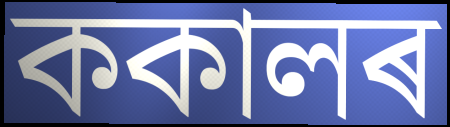
ককালৰ